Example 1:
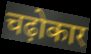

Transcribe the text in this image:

चढ़ोकार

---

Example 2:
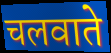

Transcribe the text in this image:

चलवाते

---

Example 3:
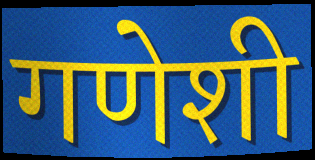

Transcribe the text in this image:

गणेशी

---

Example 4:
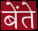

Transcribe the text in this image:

बेंते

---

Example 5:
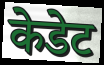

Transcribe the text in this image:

केडेट